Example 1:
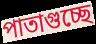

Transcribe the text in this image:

পাতাগুচ্ছে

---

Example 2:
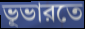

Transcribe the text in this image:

ভূভারতে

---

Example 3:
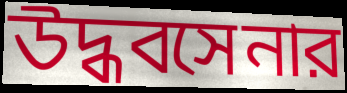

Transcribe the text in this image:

উদ্ধবসেনার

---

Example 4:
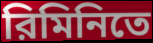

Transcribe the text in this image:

রিমিনিতে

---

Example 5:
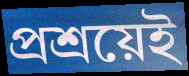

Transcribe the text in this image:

প্রশ্রয়েই